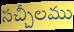
సచ్చీలము